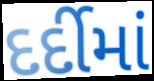
દર્દીમાં